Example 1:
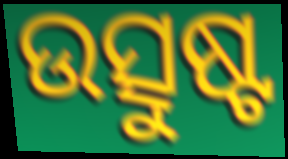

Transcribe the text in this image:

ଉତ୍ସୁଷ୍ଟ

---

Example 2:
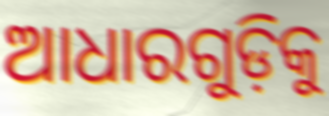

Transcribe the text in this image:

ଆଧାରଗୁଡ଼ିକୁ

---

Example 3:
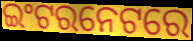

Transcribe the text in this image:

ଇଂଟରନେଟରେ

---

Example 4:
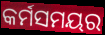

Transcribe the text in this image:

କର୍ମସମୟର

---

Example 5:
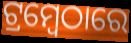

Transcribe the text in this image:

ଟ୍ରମ୍ବେଠାରେ